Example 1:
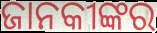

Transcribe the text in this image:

ଜାନକୀଙ୍କର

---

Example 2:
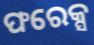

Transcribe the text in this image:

ଫରେକ୍ସ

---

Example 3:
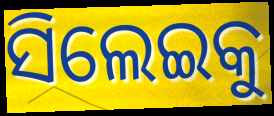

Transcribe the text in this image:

ସିଲେଇକୁ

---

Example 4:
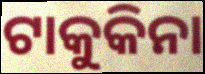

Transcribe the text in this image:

ଟାକୁକିନା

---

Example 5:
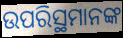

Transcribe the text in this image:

ଉପରିସ୍ଥମାନଙ୍କ